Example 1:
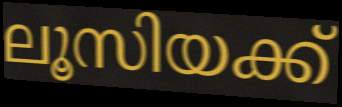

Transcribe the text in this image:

ലൂസിയക്ക്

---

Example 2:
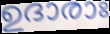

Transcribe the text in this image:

ഉദാരാഃ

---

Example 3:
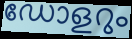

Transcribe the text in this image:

ഡോളറും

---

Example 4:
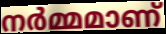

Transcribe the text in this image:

നർമ്മമാണ്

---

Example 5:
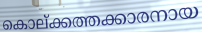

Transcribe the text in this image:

കൊല്ക്കത്തക്കാരനായ